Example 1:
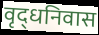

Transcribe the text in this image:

वृद्धनिवास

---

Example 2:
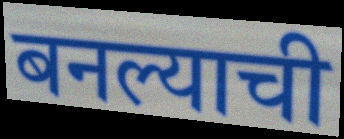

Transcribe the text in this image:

बनल्याची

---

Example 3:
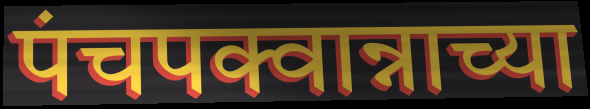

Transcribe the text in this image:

पंचपक्वान्नाच्या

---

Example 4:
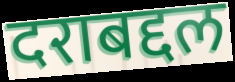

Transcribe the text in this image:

दराबद्दल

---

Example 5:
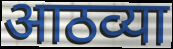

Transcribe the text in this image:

आठव्या